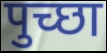
पुच्छा